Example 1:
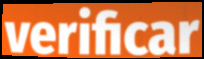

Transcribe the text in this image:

verificar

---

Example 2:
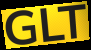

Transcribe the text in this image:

GLT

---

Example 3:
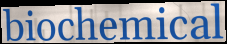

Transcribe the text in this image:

biochemical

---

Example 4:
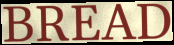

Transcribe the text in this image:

BREAD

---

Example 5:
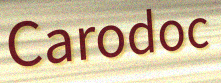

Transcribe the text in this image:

Carodoc